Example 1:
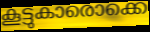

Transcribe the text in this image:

കൂട്ടുകാരൊക്കെ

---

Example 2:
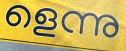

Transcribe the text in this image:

ളെന്നു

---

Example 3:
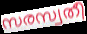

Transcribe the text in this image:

സരസ്വതീ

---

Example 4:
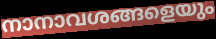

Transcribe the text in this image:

നാനാവശങ്ങളെയും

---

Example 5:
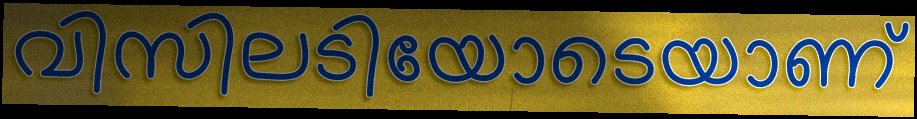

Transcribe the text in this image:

വിസിലടിയോടെയാണ്